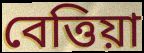
বেত্তিয়া